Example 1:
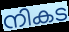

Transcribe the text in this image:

നികട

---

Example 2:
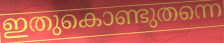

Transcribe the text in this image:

ഇതുകൊണ്ടുതന്നെ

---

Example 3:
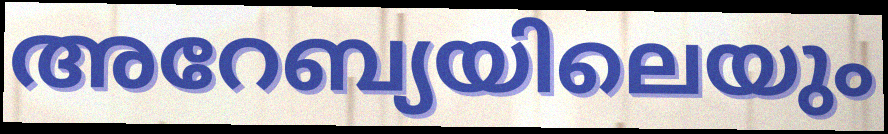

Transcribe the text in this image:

അറേബ്യയിലെയും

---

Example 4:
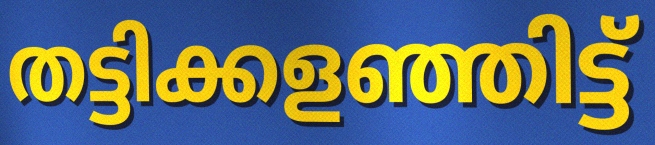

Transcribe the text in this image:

തട്ടിക്കളഞ്ഞിട്ട്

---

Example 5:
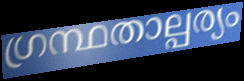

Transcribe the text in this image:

ഗ്രന്ഥതാല്പര്യം